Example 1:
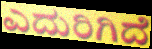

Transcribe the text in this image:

ಎದುರಿಗಿದೆ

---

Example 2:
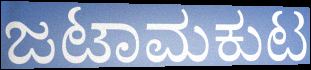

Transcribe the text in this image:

ಜಟಾಮಕುಟ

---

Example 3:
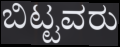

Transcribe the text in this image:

ಬಿಟ್ಟವರು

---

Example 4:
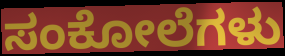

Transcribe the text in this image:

ಸಂಕೋಲೆಗಳು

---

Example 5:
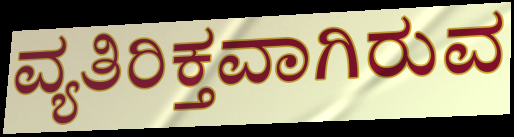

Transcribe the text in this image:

ವ್ಯತಿರಿಕ್ತವಾಗಿರುವ